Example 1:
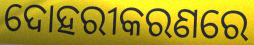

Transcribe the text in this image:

ଦୋହରୀକରଣରେ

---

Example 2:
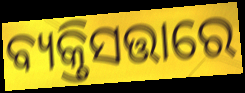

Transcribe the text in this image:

ବ୍ୟକ୍ତିସତ୍ତାରେ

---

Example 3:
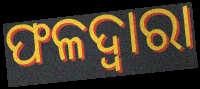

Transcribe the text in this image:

ଫଳଦ୍ୱାରା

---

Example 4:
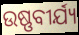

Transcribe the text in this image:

ଉଷ୍ଣବୀର୍ଯ୍ୟ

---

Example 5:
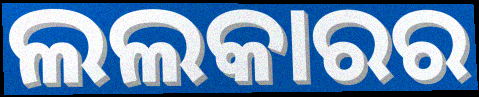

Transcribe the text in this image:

ଲଲକାରର